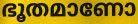
ഭൂതമാണോ